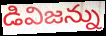
డివిజన్ను